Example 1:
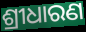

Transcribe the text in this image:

ଶ୍ରୀଧାରଣ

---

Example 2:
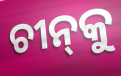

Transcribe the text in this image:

ଚୀନ୍‌କୁ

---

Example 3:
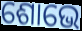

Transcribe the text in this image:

ଶୋଭେ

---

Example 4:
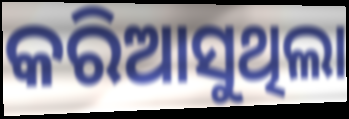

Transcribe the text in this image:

କରିଆସୁଥିଲା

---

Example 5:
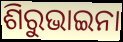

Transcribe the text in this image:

ଶିରୁଭାଇନା